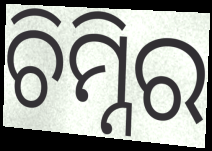
ଚିମ୍ନିର